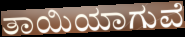
ತಾಯಿಯಾಗುವೆ